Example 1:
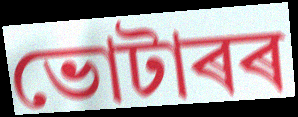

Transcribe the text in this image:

ভোটাৰৰ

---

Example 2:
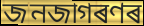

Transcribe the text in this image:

জনজাগৰণৰ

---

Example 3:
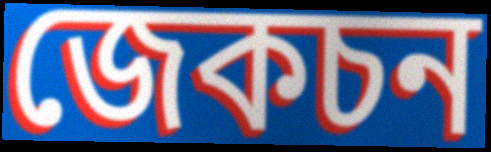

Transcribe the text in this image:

জেকচন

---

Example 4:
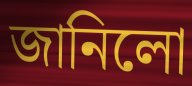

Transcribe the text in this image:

জানিলো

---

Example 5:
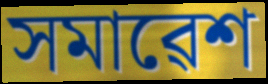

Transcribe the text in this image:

সমাৱেশ